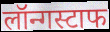
लॉन्गस्टाफ